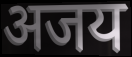
अजय